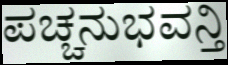
ಪಚ್ಚನುಭವನ್ತಿ